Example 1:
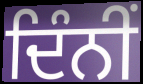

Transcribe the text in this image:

ਦਿੰਨੀਂ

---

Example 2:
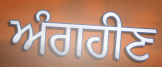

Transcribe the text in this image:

ਅੰਗਹੀਣ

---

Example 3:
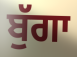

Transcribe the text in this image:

ਬੁੱਗਾ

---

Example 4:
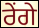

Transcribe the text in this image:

ਰੇਂਗੇ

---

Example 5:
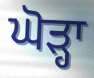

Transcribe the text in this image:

ਘੋੜ੍ਹਾ